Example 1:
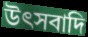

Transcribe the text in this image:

উৎসবাদি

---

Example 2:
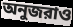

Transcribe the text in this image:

অনুজরাও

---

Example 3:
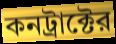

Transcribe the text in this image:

কনট্রাক্টের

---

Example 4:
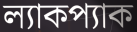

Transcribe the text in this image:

ল্যাকপ্যাক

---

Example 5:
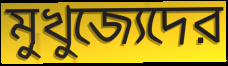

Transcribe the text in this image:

মুখুজ্যেদের